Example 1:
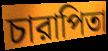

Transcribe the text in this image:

চারাপিতা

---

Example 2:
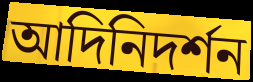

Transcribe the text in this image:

আদিনিদর্শন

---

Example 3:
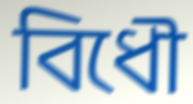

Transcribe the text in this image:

বিধৌ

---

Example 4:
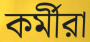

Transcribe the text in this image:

কর্মীরা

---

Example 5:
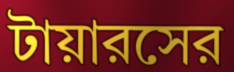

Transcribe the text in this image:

টায়ারসের